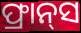
ଫ୍ରାନ୍‍ସ